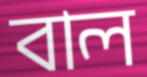
বাল